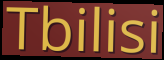
Tbilisi